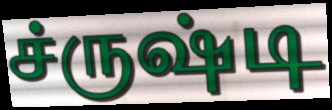
ச்ருஷ்டி